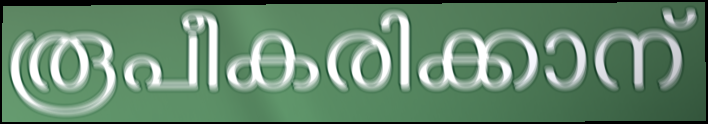
രൂപീകരിക്കാന്